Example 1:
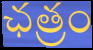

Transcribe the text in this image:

ఛత్రం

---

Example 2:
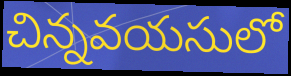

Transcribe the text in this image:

చిన్నవయసులో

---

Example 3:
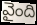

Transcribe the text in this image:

వైంది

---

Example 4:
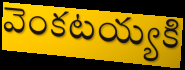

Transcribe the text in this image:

వెంకటయ్యకి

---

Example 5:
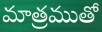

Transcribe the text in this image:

మాత్రముతో